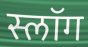
स्लॉग